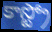
కాస్ట్రో